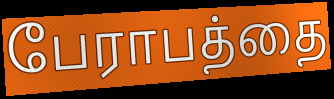
பேராபத்தை